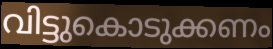
വിട്ടുകൊടുക്കണം